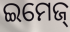
ଇମେଜ୍